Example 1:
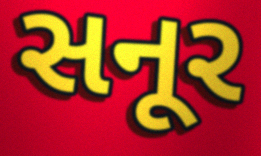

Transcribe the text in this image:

સનૂર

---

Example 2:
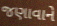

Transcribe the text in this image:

જણાવાને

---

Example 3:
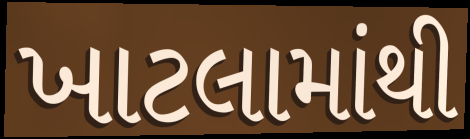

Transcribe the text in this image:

ખાટલામાંથી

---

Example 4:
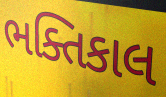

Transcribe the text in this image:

ભક્તિકાલ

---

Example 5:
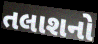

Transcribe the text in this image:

તલાશનો